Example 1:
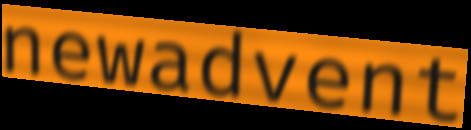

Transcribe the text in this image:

newadvent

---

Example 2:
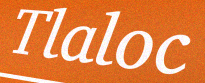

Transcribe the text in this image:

Tlaloc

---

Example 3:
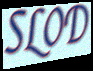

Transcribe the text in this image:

SLOD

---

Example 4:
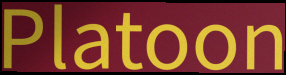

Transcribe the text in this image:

Platoon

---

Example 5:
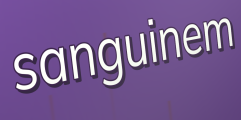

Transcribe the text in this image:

sanguinem